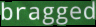
bragged